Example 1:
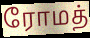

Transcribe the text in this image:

ரோமத்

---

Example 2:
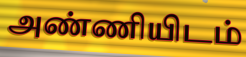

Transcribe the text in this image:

அண்ணியிடம்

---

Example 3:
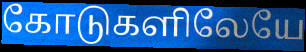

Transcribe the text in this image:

கோடுகளிலேயே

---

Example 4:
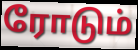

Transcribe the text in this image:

ரோடும்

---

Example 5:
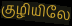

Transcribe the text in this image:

குழியிலே